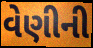
વેણીની